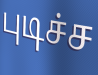
புடிச்ச